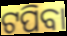
ଟପିବା